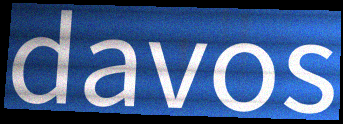
davos